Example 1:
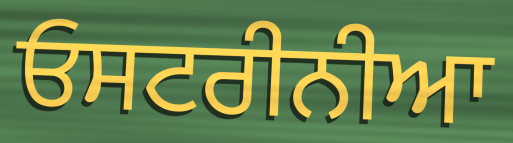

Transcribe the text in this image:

ਓਸਟਰੀਨੀਆ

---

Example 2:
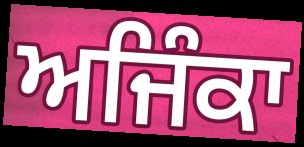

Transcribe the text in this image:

ਅਜਿੰਕਾ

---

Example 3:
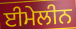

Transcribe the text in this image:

ਈਮੇਲੀਨ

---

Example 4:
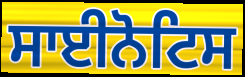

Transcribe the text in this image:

ਸਾਈਨੋਟਿਸ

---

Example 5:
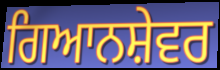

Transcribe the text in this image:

ਗਿਆਨਸ਼ੇਵਰ